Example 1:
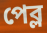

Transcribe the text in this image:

পেব্ল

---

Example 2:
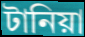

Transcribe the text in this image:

টানিয়া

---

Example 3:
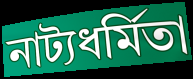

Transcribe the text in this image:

নাট্যধর্মিতা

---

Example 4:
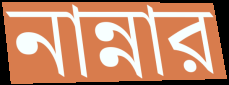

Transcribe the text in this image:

নান্নার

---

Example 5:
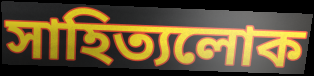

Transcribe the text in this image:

সাহিত্যলোক